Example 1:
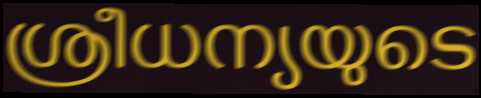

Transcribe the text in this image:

ശ്രീധന്യയുടെ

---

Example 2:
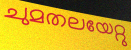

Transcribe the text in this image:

ചുമതലയേറ്റു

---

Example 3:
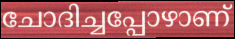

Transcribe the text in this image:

ചോദിച്ചപ്പോഴാണ്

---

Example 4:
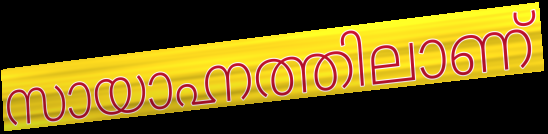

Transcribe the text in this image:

സായാഹ്നത്തിലാണ്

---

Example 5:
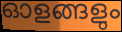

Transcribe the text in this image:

ഓളങ്ങളും